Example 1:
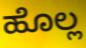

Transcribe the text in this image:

ಹೊಲ್ಲ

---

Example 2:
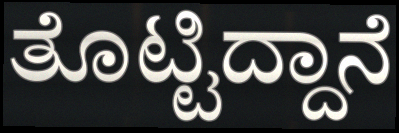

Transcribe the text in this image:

ತೊಟ್ಟಿದ್ದಾನೆ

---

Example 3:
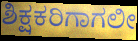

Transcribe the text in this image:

ಶಿಕ್ಷಕರಿಗಾಗಲೀ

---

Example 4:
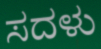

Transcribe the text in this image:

ಸದಳು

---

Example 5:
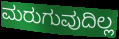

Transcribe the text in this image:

ಮರುಗುವುದಿಲ್ಲ